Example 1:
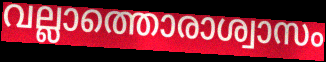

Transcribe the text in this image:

വല്ലാത്തൊരാശ്വാസം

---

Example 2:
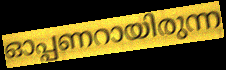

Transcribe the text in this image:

ഓപ്പണറായിരുന്ന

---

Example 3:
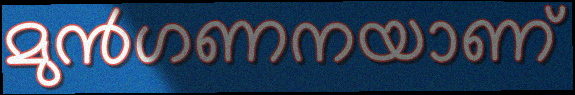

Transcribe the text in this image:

മുൻഗണനയാണ്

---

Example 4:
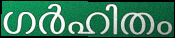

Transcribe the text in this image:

ഗർഹിതം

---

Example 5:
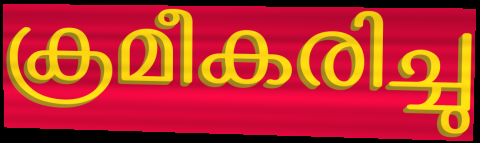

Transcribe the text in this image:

ക്രമീകരിച്ചു